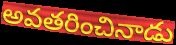
అవతరించినాడు